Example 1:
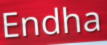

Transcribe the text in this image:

Endha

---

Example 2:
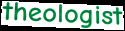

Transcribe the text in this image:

theologist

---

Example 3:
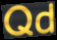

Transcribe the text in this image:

Qd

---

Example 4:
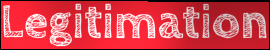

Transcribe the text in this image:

Legitimation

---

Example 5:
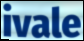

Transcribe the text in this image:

ivale